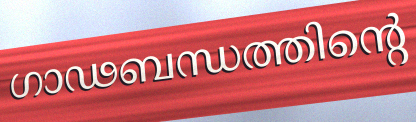
ഗാഢബന്ധത്തിന്റെ